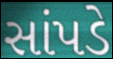
સાંપડે